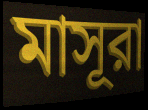
মাসূরা